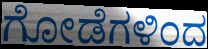
ಗೋಡೆಗಳಿಂದ